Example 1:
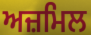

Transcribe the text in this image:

ਅਜ਼ਮਿਲ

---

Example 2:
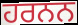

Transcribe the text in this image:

ਹਰਨਨ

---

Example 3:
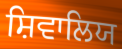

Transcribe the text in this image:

ਸ਼ਿਵਾਲਿਯ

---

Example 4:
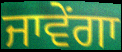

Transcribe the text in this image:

ਜਾਵੇਂਗਾ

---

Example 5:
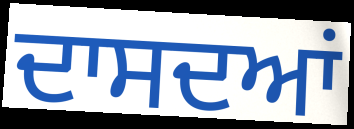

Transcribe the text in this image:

ਦਾਸਦਆਂ